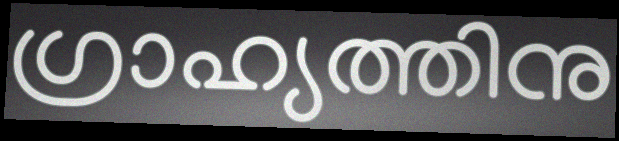
ഗ്രാഹ്യത്തിനു